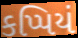
કપ્પિયં